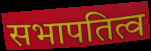
सभापतित्व